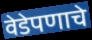
वेडेपणाचे